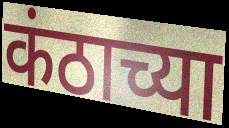
कंठाच्या